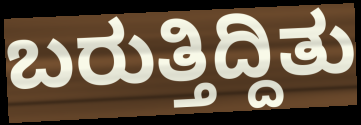
ಬರುತ್ತಿದ್ದಿತು